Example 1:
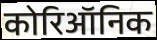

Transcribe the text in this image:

कोरिऑनिक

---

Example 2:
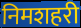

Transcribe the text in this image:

निमशहरी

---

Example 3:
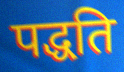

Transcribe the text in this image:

पद्धति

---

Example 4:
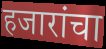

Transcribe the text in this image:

हजारांचा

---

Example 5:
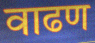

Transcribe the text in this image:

वाढण